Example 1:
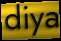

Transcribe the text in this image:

diya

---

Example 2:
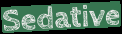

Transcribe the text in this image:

Sedative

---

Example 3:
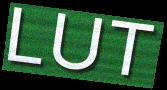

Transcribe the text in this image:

LUT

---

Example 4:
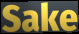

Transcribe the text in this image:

Sake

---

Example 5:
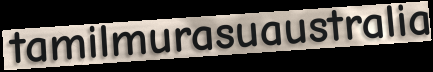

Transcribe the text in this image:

tamilmurasuaustralia